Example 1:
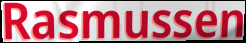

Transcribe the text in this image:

Rasmussen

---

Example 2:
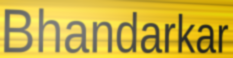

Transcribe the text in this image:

Bhandarkar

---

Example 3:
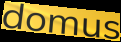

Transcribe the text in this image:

domus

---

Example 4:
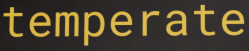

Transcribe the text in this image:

temperate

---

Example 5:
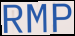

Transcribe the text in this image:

RMP